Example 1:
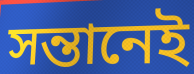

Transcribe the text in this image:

সন্তানেই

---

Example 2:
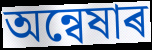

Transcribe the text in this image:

অন্বেষাৰ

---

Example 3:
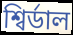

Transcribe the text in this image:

শ্বিৰ্ডাল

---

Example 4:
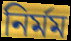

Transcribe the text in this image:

নিৰ্মম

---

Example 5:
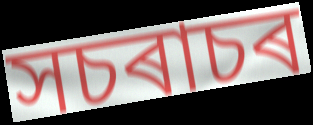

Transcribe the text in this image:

সচৰাচৰ